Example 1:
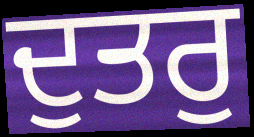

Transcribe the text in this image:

ਦੁਤਰੁ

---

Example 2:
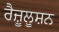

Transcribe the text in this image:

ਰੈਜ਼ੂਲੂਸ਼ਨ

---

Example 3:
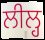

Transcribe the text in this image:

ਲੀਲ੍ਹ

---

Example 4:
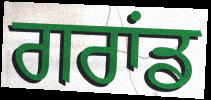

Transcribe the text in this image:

ਗਰਾਂਡ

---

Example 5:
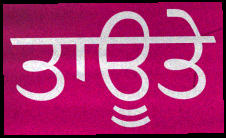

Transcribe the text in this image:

ਤਾਊਤੇ